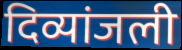
दिव्यांजली